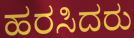
ಹರಸಿದರು